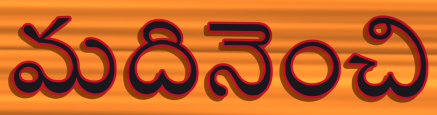
మదినెంచి